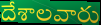
దేశాలవారు